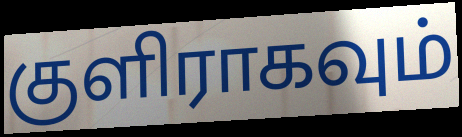
குளிராகவும்